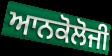
ਆਨਕੋਲੋਜੀ